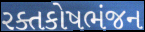
રક્તકોષભંજન